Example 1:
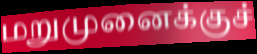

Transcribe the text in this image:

மறுமுனைக்குச்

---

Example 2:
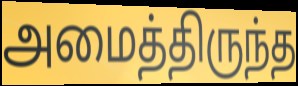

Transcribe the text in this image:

அமைத்திருந்த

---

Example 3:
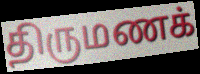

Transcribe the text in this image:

திருமணக்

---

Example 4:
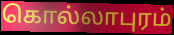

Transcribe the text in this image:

கொல்லாபுரம்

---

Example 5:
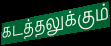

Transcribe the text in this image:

கடத்தலுக்கும்